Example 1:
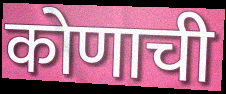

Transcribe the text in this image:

कोणाची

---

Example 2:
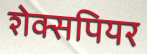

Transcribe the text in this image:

शेक्सपियर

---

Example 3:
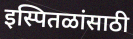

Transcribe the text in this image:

इस्पितळांसाठी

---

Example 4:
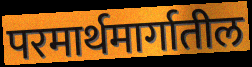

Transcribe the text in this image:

परमार्थमार्गातील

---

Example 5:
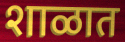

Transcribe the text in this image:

शाळात